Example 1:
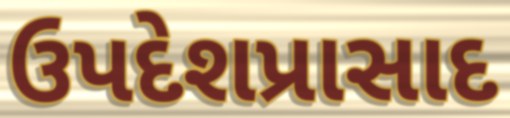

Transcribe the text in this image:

ઉપદેશપ્રાસાદ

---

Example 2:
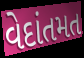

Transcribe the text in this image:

વેદાંતમત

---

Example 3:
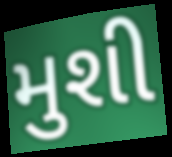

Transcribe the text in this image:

મુશી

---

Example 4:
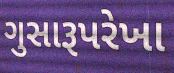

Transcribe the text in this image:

ગુસારૂપરેખા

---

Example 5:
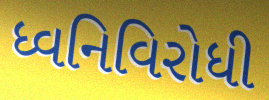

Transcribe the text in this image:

ધ્વનિવિરોધી